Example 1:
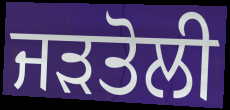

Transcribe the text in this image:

ਜੜਤੋਲੀ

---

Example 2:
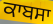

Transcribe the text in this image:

ਕਾਬਸਾ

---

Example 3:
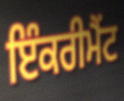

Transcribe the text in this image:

ਇੰਕਰੀਮੈਂਟ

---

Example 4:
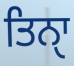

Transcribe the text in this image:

ਤਿਨੑਾ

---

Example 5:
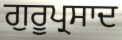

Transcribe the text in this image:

ਗੁਰੂਪ੍ਰਸਾਦ